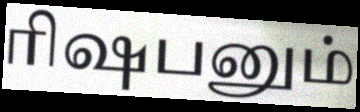
ரிஷபனும்